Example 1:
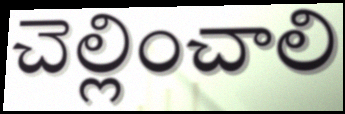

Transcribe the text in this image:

చెల్లించాలి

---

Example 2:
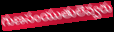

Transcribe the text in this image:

గుణసంయుతులెవ్వరు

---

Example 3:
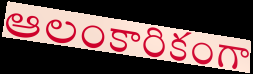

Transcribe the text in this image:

ఆలంకారికంగా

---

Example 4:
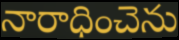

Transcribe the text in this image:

నారాధించెను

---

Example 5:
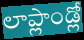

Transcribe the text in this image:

లాప్లాండ్లో